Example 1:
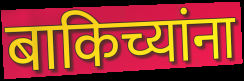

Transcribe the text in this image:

बाकिच्यांना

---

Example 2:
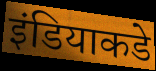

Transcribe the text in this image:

इंडियाकडे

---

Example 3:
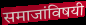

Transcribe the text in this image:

समाजांविषयी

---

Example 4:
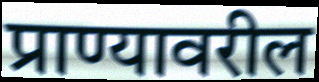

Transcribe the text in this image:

प्राण्यावरील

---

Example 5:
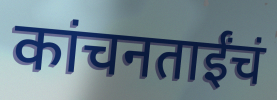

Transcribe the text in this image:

कांचनताईंचं